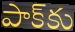
పాక్‌కు